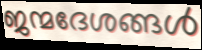
ജന്മദേശങ്ങൾ